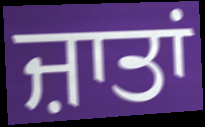
ਜ਼ਾਤਾਂ